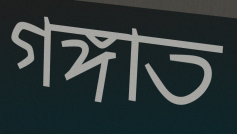
গঙ্গাত